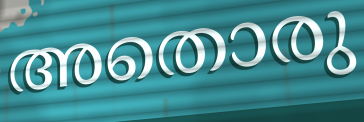
അതൊരു